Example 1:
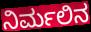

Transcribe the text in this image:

ನಿರ್ಮಲಿನ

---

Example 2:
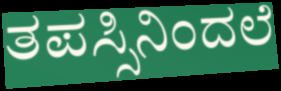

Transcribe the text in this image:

ತಪಸ್ಸಿನಿಂದಲೆ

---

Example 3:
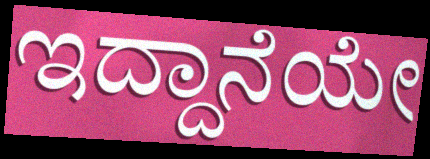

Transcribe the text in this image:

ಇದ್ದಾನೆಯೇ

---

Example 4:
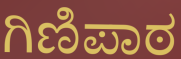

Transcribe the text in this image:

ಗಿಣಿಪಾಠ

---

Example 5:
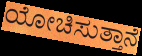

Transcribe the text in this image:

ಯೋಚಿಸುತ್ತಾನೆ